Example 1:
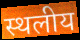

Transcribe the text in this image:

स्थलीय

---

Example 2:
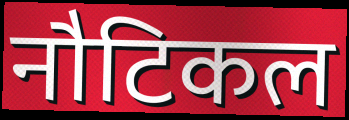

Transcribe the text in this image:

नौटिकल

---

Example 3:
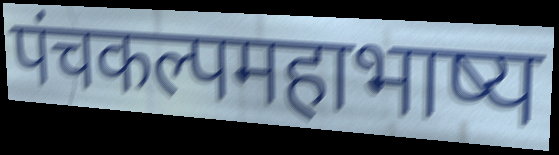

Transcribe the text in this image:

पंचकल्पमहाभाष्य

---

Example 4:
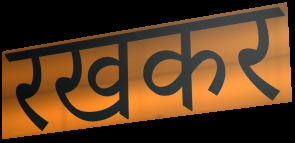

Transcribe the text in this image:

रखकर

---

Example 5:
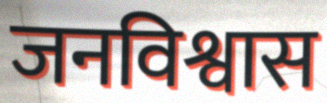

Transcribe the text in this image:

जनविश्वास